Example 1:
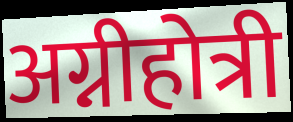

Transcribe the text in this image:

अग्नीहोत्री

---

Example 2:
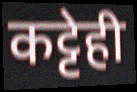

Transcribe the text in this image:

कट्टेही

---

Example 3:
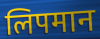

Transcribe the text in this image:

लिपमान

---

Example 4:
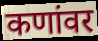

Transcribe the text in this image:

कणांवर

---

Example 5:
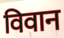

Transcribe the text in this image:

विवान